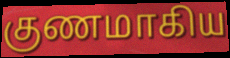
குணமாகிய